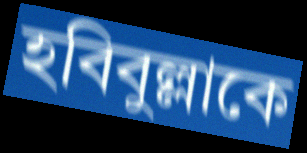
হবিবুল্লাকে